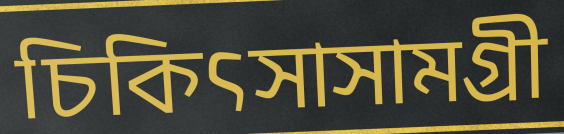
চিকিৎসাসামগ্রী